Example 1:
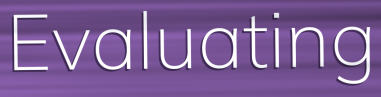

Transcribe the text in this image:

Evaluating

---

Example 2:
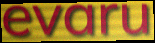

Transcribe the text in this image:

evaru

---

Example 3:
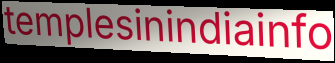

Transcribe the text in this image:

templesinindiainfo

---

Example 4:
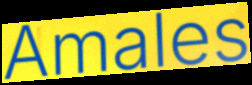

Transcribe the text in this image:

Amales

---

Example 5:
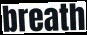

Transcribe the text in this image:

breath